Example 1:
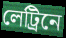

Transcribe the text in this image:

লেট্রিনে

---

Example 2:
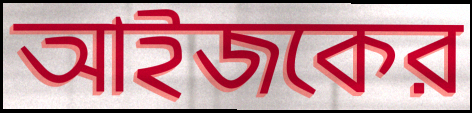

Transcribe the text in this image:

আইজকের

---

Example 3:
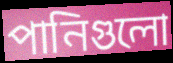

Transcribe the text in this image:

পানিগুলো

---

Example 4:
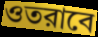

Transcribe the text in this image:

ওতরাবে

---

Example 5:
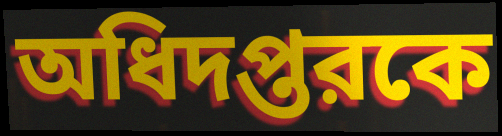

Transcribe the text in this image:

অধিদপ্তরকে